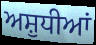
ਅਸ਼ੁਧੀਆਂ